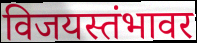
विजयस्तंभावर